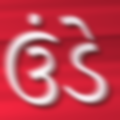
ઉંડે